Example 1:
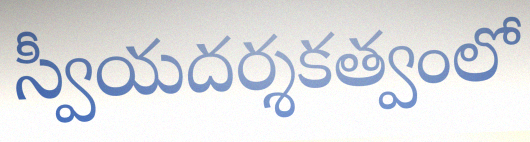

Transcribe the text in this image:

స్వీయదర్శకత్వంలో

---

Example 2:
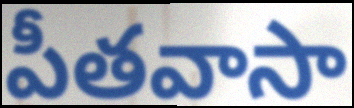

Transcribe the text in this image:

పీతవాసా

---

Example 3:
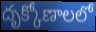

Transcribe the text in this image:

దృక్కోణాలలో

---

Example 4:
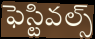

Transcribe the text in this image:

ఫెస్టివల్స్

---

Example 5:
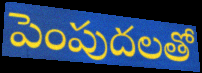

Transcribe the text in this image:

పెంపుదలతో